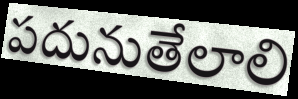
పదునుతేలాలి